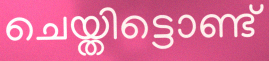
ചെയ്തിട്ടൊണ്ട്